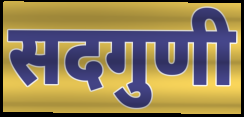
सदगुणी